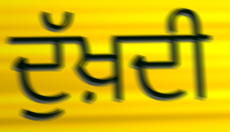
ਦੁੱਖ਼ਦੀ